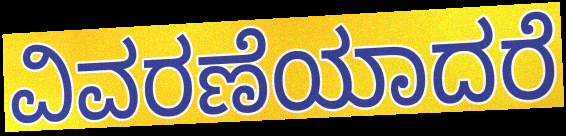
ವಿವರಣೆಯಾದರೆ